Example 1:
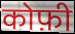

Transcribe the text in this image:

कोफ़ी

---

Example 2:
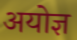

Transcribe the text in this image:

अयोज्ञ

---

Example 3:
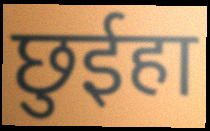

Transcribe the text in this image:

छुईहा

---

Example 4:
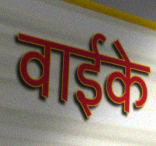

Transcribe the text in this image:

वाईके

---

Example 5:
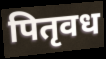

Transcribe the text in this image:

पितृवध